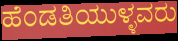
ಹೆಂಡತಿಯುಳ್ಳವರು